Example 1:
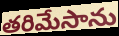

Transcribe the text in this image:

తరిమేసాను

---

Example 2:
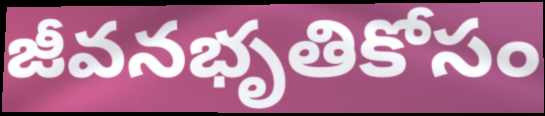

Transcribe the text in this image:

జీవనభృతికోసం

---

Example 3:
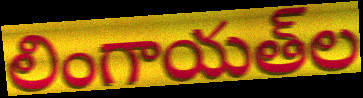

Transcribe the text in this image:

లింగాయత్‌ల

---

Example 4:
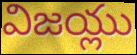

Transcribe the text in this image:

విజయ్లు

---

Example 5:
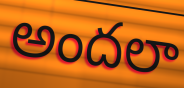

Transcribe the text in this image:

అందలా